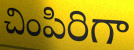
చింపిరిగా